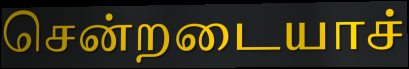
சென்றடையாச்